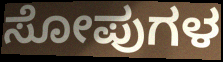
ಸೋಪುಗಳ